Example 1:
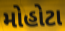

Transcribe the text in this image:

મોહોટા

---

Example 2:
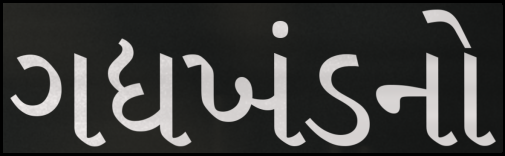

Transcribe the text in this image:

ગદ્યખંડનો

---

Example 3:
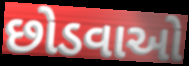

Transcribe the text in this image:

છોડવાઓ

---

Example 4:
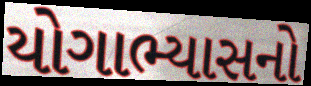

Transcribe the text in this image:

યોગાભ્યાસનો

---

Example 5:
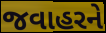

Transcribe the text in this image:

જવાહરને